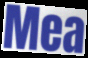
Mea